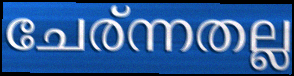
ചേര്ന്നതല്ല